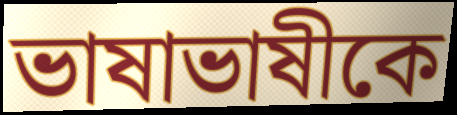
ভাষাভাষীকে